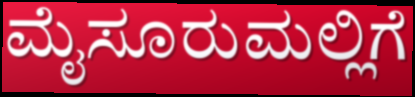
ಮೈಸೂರುಮಲ್ಲಿಗೆ